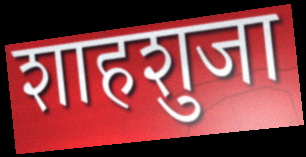
शाहशुजा